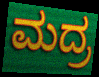
ಮದ್ರ